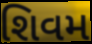
શિવમ